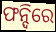
ଫନ୍ଦିରେ